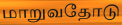
மாறுவதோடு